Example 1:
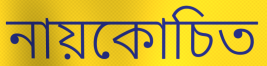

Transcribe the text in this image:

নায়কোচিত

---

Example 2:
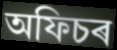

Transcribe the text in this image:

অফিচৰ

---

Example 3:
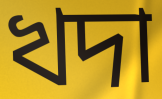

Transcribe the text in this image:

খদা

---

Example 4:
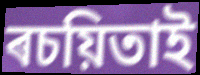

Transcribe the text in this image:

ৰচয়িতাই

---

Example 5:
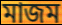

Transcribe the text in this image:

মাজম